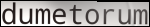
dumetorum